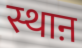
स्थाऩ